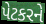
પેટકરને